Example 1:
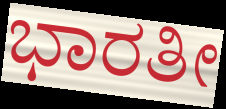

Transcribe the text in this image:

ಭಾರತೀ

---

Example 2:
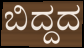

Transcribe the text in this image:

ಬಿದ್ದದ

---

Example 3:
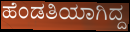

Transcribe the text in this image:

ಹೆಂಡತಿಯಾಗಿದ್ದ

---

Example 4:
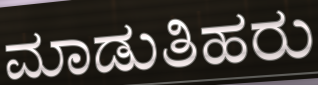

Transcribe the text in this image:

ಮಾಡುತಿಹರು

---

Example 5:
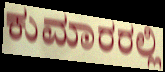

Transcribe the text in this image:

ಕುಮಾರರಲ್ಲಿ